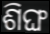
ଶିଙ୍ଘ